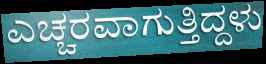
ಎಚ್ಚರವಾಗುತ್ತಿದ್ದಳು